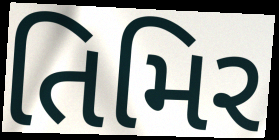
તિમિર